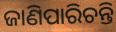
ଜାଣିପାରିଚନ୍ତି